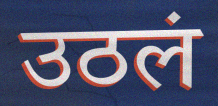
उठलं